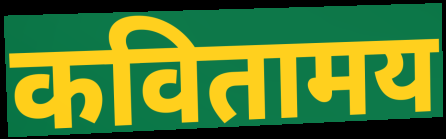
कवितामय